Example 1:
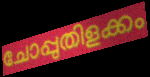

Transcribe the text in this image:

ചോപ്പുതിളക്കം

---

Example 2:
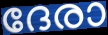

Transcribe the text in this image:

ദേരാ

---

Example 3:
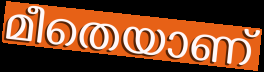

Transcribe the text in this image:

മീതെയാണ്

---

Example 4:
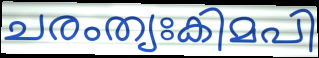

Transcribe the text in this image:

ചരംത്യഃകിമപി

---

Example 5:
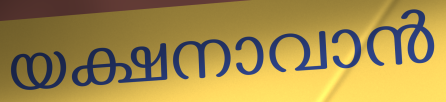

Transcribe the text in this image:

യക്ഷനാവാൻ